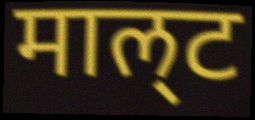
माल्ट